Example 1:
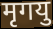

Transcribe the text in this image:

मृगयु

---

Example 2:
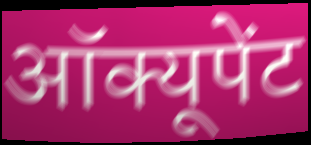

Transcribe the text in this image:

ऑक्यूपेंट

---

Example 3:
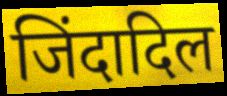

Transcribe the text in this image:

जिंदादिल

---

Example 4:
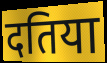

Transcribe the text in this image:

दतिया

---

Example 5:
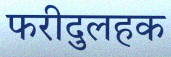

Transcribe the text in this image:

फरीदुलहक